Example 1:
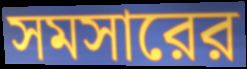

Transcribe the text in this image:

সমসারের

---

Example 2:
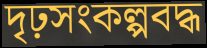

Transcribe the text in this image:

দৃঢ়সংকল্পবদ্ধ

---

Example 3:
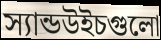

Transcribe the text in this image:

স্যান্ডউইচগুলো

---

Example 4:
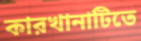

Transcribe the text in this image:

কারখানাটিতে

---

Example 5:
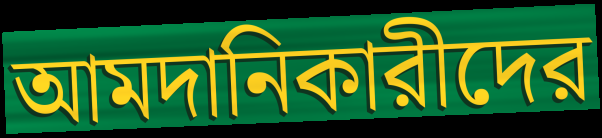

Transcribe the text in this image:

আমদানিকারীদের